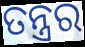
ତନ୍ତ୍ରର